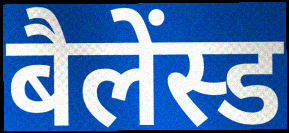
बैलेंस्ड